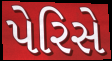
પેરિસે